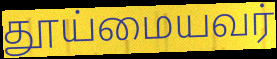
தூய்மையவர்